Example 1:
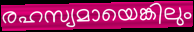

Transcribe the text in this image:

രഹസ്യമായെങ്കിലും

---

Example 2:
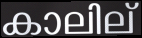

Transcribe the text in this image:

കാലില്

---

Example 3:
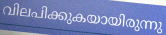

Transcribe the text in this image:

വിലപിക്കുകയായിരുന്നു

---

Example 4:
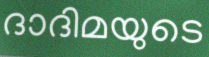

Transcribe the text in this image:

ദാദിമയുടെ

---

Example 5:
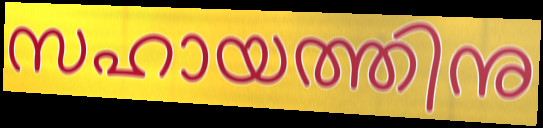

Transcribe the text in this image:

സഹായത്തിനു